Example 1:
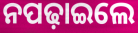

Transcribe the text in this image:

ନପଢ଼ାଇଲେ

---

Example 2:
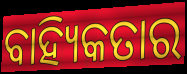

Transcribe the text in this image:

ବାହ୍ୟିକତାର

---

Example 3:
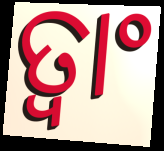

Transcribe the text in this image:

ତ୍ଵାଂ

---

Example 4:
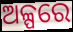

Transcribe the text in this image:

ଅଳ୍ପରେ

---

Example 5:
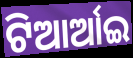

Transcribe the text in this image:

ଟିଆର୍ଆଇ